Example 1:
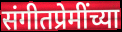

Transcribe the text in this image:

संगीतप्रेमींच्या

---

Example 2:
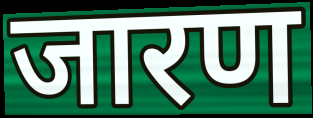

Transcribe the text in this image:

जारण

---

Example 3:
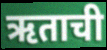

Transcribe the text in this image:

ऋताची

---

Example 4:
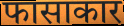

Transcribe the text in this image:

फासाकार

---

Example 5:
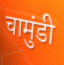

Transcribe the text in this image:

चामुंडी